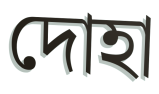
দোহা